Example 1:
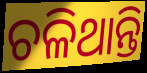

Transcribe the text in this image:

ଚଳିଥାନ୍ତି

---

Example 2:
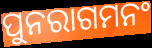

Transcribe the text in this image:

ପୁନରାଗମନଂ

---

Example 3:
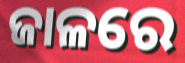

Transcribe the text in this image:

ଜାଳରେ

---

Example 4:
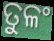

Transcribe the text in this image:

ତୁଳଂ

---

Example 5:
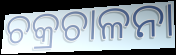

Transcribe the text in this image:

ଚକ୍ରଚାଳନା